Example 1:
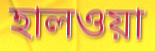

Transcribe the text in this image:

হালওয়া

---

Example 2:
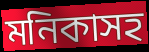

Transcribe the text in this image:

মনিকাসহ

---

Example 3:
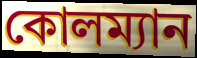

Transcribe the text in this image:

কোলম্যান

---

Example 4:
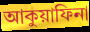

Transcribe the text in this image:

আকুয়াফিনা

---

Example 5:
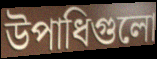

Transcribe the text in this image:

উপাধিগুলো